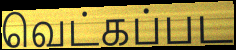
வெட்கப்பட